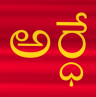
అర్ధే